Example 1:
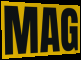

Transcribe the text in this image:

MAG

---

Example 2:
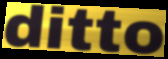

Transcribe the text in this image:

ditto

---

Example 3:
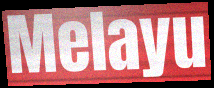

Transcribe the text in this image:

Melayu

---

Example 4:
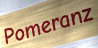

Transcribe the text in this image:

Pomeranz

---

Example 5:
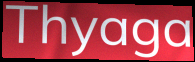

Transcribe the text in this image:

Thyaga